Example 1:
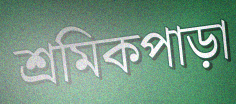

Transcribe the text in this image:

শ্রমিকপাড়া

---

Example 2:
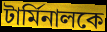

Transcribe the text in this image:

টার্মিনালকে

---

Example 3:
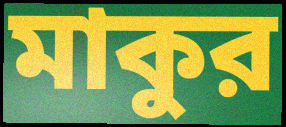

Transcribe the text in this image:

মাকুর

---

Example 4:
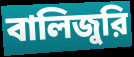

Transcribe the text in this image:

বালিজুরি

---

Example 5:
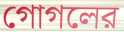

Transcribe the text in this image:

গোগলের